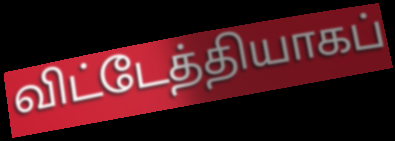
விட்டேத்தியாகப்